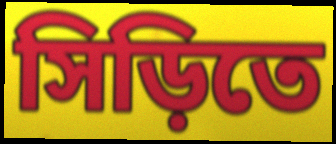
সিড়িতে